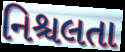
નિશ્ચલતા